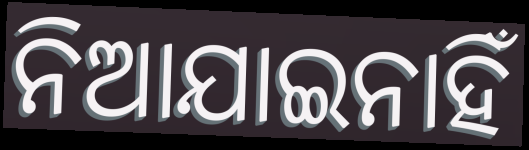
ନିଆଯାଇନାହିଁ